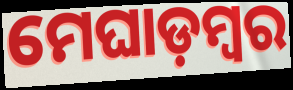
ମେଘାଡ଼ମ୍ବର